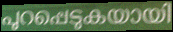
പുറപ്പെടുകയായി